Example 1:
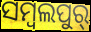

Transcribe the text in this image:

ସମ୍ବଲପୁର୍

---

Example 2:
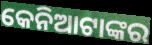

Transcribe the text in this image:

କେନିଆଟାଙ୍କର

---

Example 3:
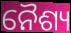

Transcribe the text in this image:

ନୈଶ୍ୟ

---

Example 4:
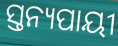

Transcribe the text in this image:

ସ୍ତନ୍ୟପାୟୀ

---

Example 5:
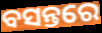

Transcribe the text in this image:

ବସନ୍ତରେ